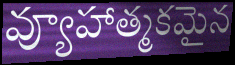
వ్యూహాత్మకమైన